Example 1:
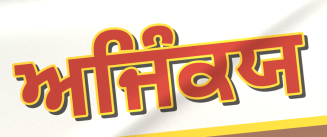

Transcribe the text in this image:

ਅਜਿੰਕਯ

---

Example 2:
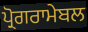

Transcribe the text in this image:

ਪ੍ਰੋਗਰਾਮੇਬਲ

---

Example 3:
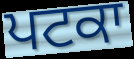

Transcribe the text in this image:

ਪਟਕਾ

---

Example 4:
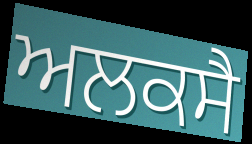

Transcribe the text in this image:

ਅਲਕਸੈ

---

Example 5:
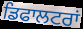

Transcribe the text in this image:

ਡਿਫਾਲਟਰਾਂ